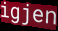
igjen